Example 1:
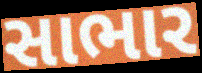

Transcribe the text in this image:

સાભાર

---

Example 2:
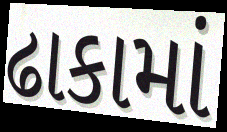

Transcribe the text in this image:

ઢાકામાં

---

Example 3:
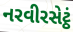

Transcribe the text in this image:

નરવીરસેટ્ઠં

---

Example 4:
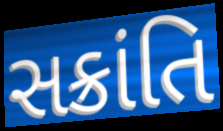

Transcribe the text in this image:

સક્રાંતિ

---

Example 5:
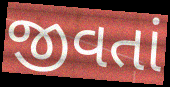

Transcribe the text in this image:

જીવતાં